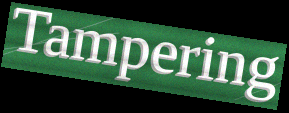
Tampering